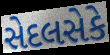
સેદલસેકે